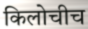
किलोचीच